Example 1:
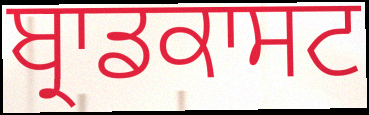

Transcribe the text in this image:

ਬ੍ਰਾਡਕਾਸਟ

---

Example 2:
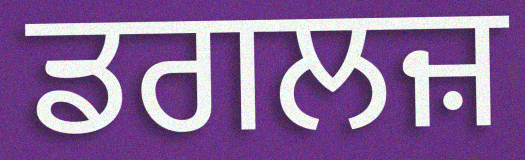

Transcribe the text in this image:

ਡਗਲਜ਼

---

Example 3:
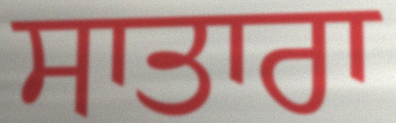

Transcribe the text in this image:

ਸਾਤਾਰਾ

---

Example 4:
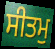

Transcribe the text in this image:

ਸੀਤਮੁ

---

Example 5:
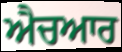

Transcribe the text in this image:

ਐਚਆਰ